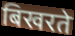
बिखरते